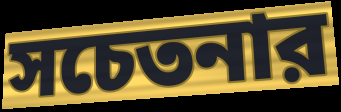
সচেতনার